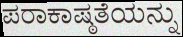
ಪರಾಕಾಷ್ಠತೆಯನ್ನು